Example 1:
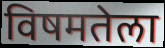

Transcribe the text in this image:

विषमतेला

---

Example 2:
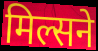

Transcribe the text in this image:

मिल्सने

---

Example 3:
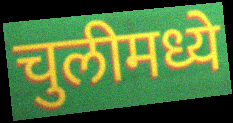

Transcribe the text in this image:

चुलीमध्ये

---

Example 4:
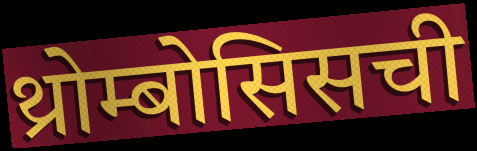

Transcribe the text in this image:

थ्रोम्बोसिसची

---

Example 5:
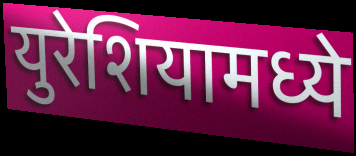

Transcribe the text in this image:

युरेशियामध्ये